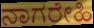
ನಾಗರೇಹಿ